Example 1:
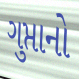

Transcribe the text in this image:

ગુપ્તાનો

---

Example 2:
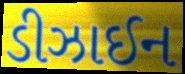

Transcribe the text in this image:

ડીઝાઈન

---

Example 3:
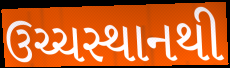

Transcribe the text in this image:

ઉચ્ચસ્થાનથી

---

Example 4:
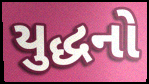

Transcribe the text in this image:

યુદ્ધનો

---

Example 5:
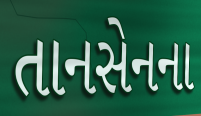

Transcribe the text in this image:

તાનસેનના